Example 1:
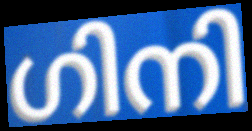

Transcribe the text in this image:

ഗിനി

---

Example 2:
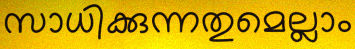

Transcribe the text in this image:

സാധിക്കുന്നതുമെല്ലാം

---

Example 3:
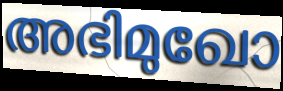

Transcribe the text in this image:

അഭിമുഖോ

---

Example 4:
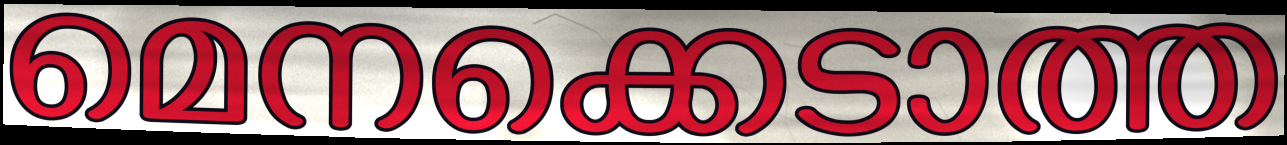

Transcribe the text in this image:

മെനക്കെടാത്ത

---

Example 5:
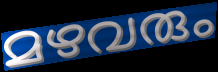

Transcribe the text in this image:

മഴവരും